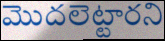
మొదలెట్టారని